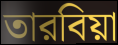
তারবিয়া